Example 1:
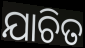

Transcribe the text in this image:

ଯାଚିତ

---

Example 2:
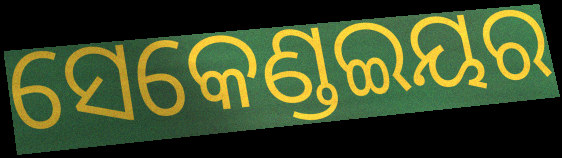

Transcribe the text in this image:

ସେକେଣ୍ଡଇୟର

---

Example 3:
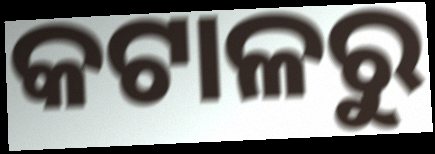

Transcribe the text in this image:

କଟାଳରୁ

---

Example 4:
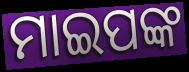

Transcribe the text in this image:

ମାଇପଙ୍କ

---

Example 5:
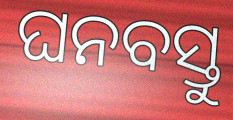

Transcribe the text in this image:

ଘନବସ୍ତୁ